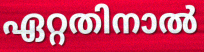
ഏറ്റതിനാൽ